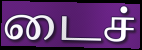
டைச்